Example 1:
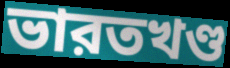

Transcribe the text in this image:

ভারতখণ্ড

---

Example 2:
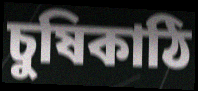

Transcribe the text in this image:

চুষিকাঠি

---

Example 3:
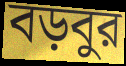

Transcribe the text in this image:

বড়বুর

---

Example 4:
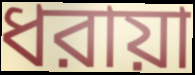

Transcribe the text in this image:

ধরায়া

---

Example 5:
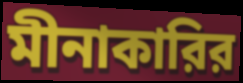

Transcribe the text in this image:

মীনাকারির